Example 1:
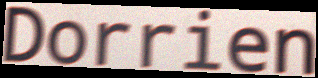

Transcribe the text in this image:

Dorrien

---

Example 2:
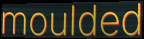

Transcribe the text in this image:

moulded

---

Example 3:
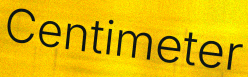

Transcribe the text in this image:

Centimeter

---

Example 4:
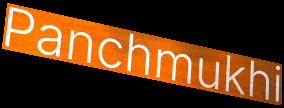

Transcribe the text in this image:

Panchmukhi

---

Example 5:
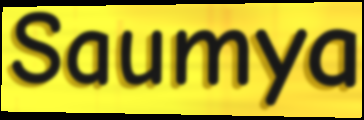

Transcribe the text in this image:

Saumya